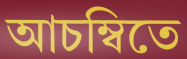
আচম্বিতে